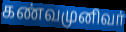
கண்வமுனிவர்